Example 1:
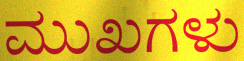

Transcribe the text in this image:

ಮುಖಗಳು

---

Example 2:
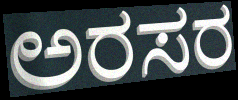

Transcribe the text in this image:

ಅರಸರ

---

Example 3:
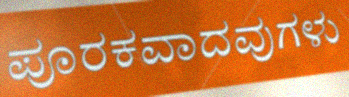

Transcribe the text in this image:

ಪೂರಕವಾದವುಗಳು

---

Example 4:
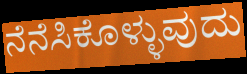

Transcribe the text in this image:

ನೆನೆಸಿಕೊಳ್ಳುವುದು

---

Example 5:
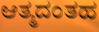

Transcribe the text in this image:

ಆತ್ಮದಂತಹ